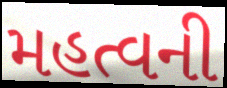
મહત્વની